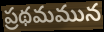
ప్రథమమున